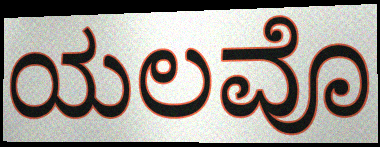
ಯಲವೊ